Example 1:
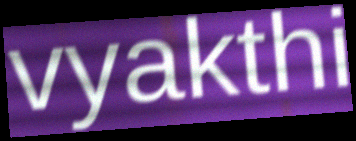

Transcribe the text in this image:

vyakthi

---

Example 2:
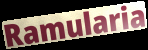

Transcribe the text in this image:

Ramularia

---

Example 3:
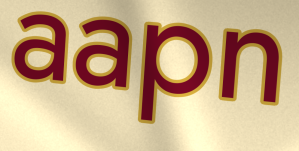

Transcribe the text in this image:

aapn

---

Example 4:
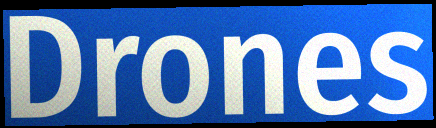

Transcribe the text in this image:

Drones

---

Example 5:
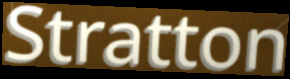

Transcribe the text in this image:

Stratton